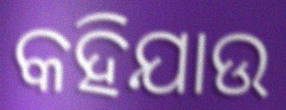
କହିଯାଉ